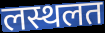
लस्थलत